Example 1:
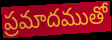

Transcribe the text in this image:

ప్రమాదముతో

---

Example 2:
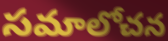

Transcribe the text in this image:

సమాలోచన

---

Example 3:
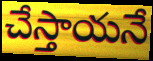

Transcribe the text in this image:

చేస్తాయనే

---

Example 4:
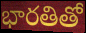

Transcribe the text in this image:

భారతితో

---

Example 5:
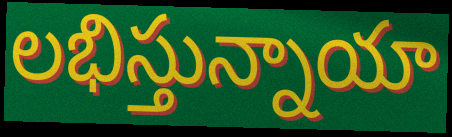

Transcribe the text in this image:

లభిస్తున్నాయా